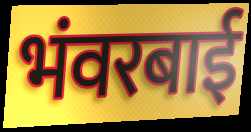
भंवरबाई